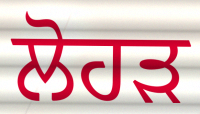
ਲੋਹੜ